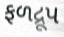
ફળદ્રૂપ